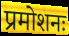
प्रमोशनः